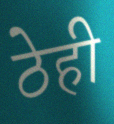
ठेही